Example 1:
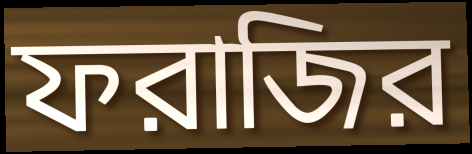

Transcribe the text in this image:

ফরাজির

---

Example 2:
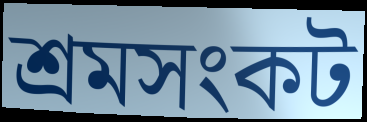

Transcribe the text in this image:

শ্রমসংকট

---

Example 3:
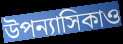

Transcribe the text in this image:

উপন্যাসিকাও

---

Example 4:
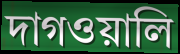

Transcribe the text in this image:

দাগওয়ালি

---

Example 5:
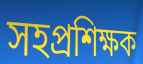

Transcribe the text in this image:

সহপ্রশিক্ষক